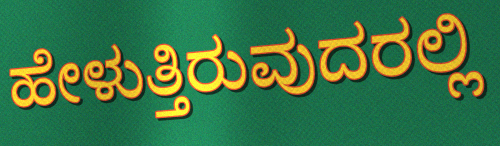
ಹೇಳುತ್ತಿರುವುದರಲ್ಲಿ